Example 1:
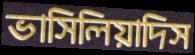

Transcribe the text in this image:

ভাসিলিয়াদিস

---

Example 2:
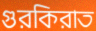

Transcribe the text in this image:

গুরকিরাত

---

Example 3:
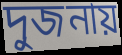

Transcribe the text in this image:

দুজনায়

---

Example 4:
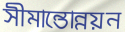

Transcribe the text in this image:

সীমান্তোন্নয়ন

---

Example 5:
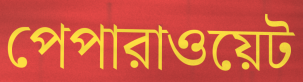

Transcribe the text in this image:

পেপারাওয়েট